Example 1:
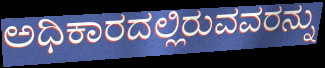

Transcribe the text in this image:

ಅಧಿಕಾರದಲ್ಲಿರುವವರನ್ನು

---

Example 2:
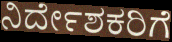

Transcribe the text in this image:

ನಿರ್ದೇಶಕರಿಗೆ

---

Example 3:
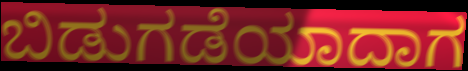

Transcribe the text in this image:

ಬಿಡುಗಡೆಯಾದಾಗ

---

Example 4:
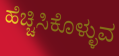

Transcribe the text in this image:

ಹೆಚ್ಚಿಸಿಕೊಳ್ಳುವ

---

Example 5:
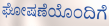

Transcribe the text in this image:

ಘೋಷಣೆಯೊಂದಿಗೆ